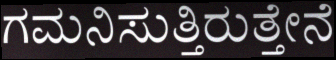
ಗಮನಿಸುತ್ತಿರುತ್ತೇನೆ